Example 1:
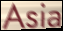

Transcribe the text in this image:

Asia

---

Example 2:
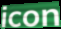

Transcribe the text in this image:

icon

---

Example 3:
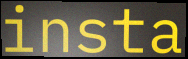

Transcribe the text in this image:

insta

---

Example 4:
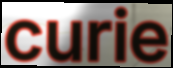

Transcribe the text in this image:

curie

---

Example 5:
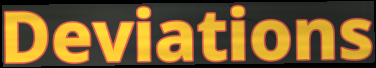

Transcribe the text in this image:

Deviations